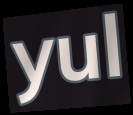
yul